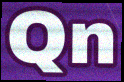
Qn